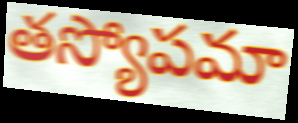
తస్యోపమా